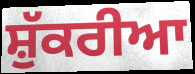
ਸ਼ੁੱਕਰੀਆ